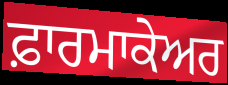
ਫ਼ਾਰਮਾਕੇਅਰ